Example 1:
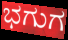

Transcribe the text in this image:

ಭಗುಗ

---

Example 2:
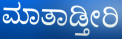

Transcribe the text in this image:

ಮಾತಾಡ್ತೀರಿ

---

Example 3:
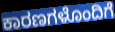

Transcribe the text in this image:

ಕಾರಣಗಳೊಂದಿಗೆ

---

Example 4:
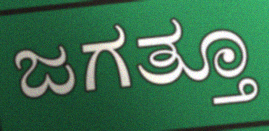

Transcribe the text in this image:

ಜಗತ್ತೂ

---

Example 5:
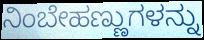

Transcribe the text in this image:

ನಿಂಬೇಹಣ್ಣುಗಳನ್ನು